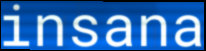
insana